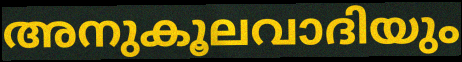
അനുകൂലവാദിയും